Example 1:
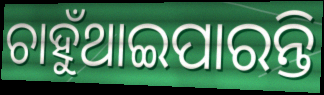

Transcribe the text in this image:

ଚାହୁଁଥାଇପାରନ୍ତି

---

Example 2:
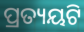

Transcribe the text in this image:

ପ୍ରତ୍ୟୟଟି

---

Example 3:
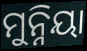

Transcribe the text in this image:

ମୁନ୍ନିୟା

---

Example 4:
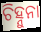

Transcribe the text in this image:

ଚିହ୍ନୁନା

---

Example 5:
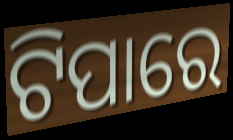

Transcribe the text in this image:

ଟିପାରେ